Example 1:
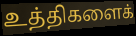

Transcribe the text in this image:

உத்திகளைக்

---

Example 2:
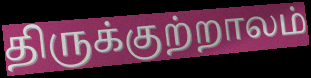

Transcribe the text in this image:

திருக்குற்றாலம்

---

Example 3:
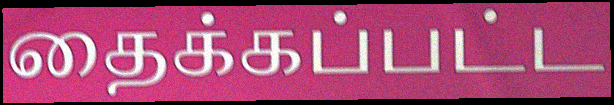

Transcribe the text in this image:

தைக்கப்பட்ட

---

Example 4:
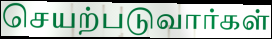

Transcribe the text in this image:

செயற்படுவார்கள்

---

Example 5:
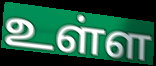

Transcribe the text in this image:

உள்ள